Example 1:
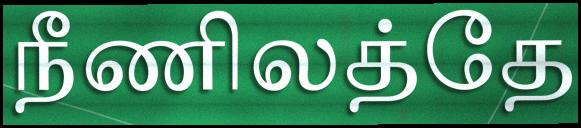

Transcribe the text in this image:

நீணிலத்தே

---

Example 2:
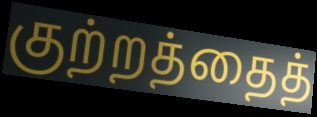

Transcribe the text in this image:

குற்றத்தைத்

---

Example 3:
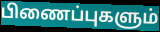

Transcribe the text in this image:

பிணைப்புகளும்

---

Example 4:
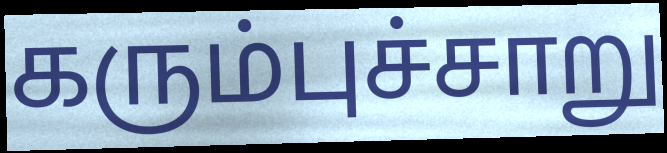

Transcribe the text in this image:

கரும்புச்சாறு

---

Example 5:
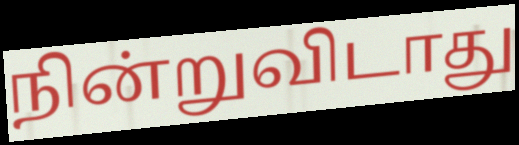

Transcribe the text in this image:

நின்றுவிடாது